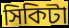
সিকিটা